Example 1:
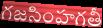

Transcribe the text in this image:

గజసింహగతీ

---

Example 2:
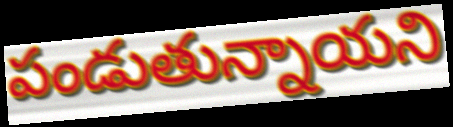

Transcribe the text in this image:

పండుతున్నాయని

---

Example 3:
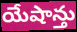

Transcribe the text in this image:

యేషాన్తు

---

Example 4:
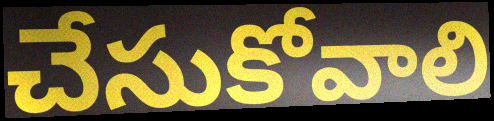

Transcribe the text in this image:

చేసుకోవాలి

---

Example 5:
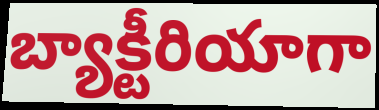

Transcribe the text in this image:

బ్యాక్టీరియాగా